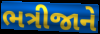
ભત્રીજાને